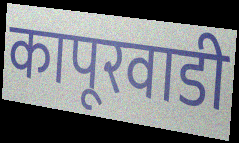
कापूरवाडी